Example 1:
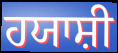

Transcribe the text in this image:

ਹਯਾਸ਼ੀ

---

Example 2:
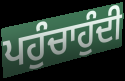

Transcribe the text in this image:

ਪਹੁੰਚਾਹੁੰਦੀ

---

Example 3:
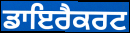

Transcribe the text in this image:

ਡਾਇਰੈਕਰਟ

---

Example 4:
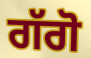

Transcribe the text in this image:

ਗੱਗੋ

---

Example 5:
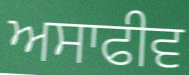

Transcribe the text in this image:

ਅਸਾਫੀਵ